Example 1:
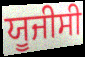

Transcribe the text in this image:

ਯੂਜੀਸੀ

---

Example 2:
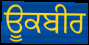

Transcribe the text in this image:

ਊਕਬੀਰ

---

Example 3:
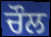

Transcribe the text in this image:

ਚੌਲ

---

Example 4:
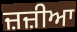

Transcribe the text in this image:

ਜ਼ਜ਼ੀਆ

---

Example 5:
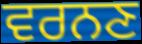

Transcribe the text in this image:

ਵਰਨਣ